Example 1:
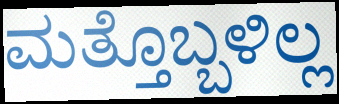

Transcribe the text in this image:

ಮತ್ತೊಬ್ಬಳಿಲ್ಲ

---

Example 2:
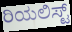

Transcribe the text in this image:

ರಿಯಲಿಸ್ಟ್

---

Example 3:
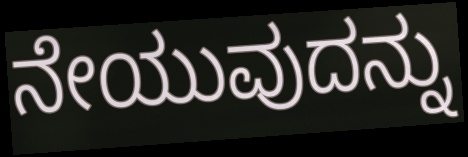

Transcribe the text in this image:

ನೇಯುವುದನ್ನು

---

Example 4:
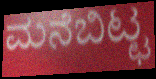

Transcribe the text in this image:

ಮನೆಬಿಟ್ಟ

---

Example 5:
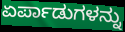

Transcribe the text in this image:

ಏರ್ಪಾಡುಗಳನ್ನು